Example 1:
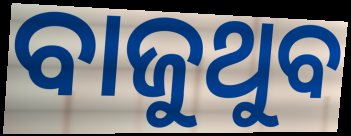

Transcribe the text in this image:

ବାଜୁଥୁବ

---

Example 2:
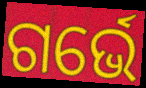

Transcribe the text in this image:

ଗର୍ଭେ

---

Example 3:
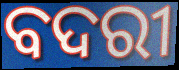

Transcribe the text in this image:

ବଦରୀ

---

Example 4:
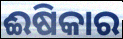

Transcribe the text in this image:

ଈଷିକାର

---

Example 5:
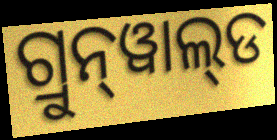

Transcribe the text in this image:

ଗ୍ରୁନ୍‌ୱାଲ୍‌ଡ